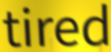
tired